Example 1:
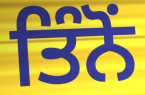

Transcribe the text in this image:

ਤਿੰਨੋਂ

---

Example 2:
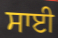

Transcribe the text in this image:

ਸਾਈ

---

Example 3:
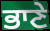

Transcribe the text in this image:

ਭਾਣੇ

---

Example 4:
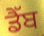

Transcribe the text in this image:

ਡੈੱਬ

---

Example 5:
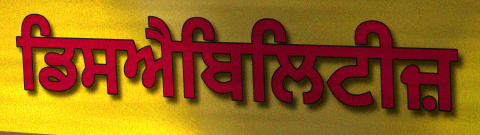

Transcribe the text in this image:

ਡਿਸਐਬਿਲਿਟੀਜ਼